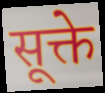
सूक्ते